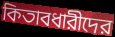
কিতাবধারীদের